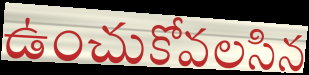
ఉంచుకోవలసిన